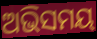
ଅଭିସମୟ